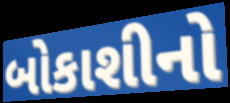
બોકાશીનો